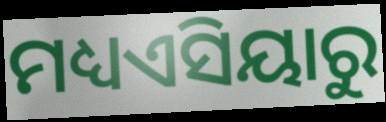
ମଧ୍ୟଏସିୟାରୁ